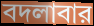
বদলাবার